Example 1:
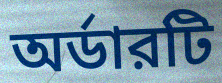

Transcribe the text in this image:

অর্ডারটি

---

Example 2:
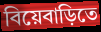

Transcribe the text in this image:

বিয়েবাড়িতে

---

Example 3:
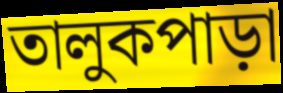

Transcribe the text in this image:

তালুকপাড়া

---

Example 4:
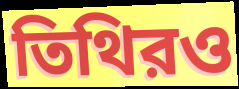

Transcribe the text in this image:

তিথিরও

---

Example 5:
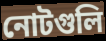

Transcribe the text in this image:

নোটগুলি